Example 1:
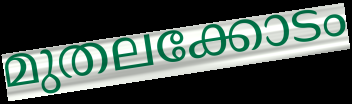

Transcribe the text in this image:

മുതലക്കോടം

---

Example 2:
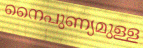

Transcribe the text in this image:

നൈപുണ്യമുള്ള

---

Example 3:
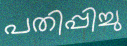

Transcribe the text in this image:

പതിപ്പിച്ചു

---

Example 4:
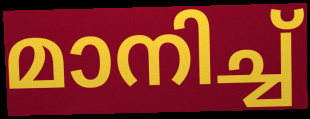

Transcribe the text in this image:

മാനിച്ച്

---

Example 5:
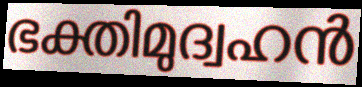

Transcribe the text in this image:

ഭക്തിമുദ്വഹൻ